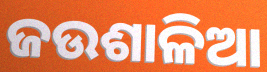
ଜଉଶାଳିଆ